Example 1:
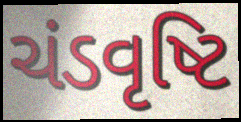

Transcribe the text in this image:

ચંડવૃષ્ટિ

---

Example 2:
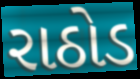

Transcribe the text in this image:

રાઠોડ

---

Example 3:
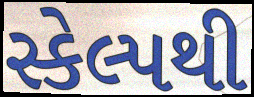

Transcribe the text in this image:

સ્કેલ્પથી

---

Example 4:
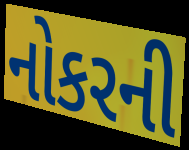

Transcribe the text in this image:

નોકરની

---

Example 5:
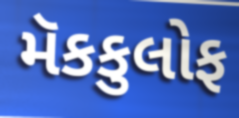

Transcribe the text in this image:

મૅકકુલોફ